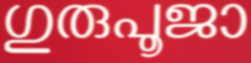
ഗുരുപൂജാ